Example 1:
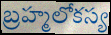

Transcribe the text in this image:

బ్రహ్మలోకస్య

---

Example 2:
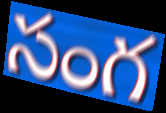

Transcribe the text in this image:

సంగ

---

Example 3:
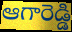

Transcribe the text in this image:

ఆగారెడ్డి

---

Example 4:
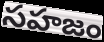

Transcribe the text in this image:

సహజం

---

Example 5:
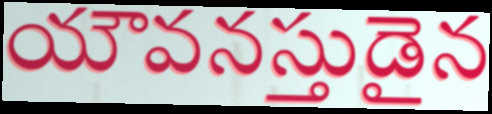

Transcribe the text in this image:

యౌవనస్తుడైన